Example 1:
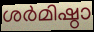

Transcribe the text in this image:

ശർമിഷ്ഠാ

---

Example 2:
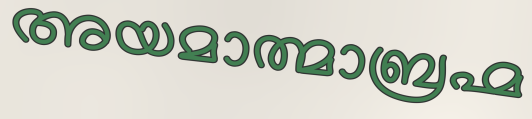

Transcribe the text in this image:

അയമാത്മാബ്രഹ്മ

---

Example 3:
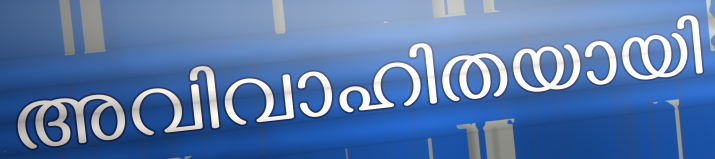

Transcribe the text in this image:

അവിവാഹിതയായി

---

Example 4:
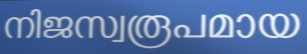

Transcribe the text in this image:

നിജസ്വരൂപമായ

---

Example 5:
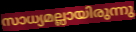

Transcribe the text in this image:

സാധ്യമല്ലായിരുന്നു